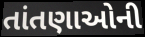
તાંતણાઓની